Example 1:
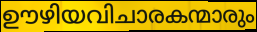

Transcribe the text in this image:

ഊഴിയവിചാരകന്മാരും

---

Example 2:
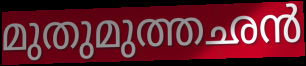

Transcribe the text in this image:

മുതുമുത്തഛൻ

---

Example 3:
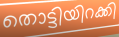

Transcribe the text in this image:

തൊട്ടിയിറക്കി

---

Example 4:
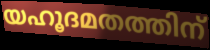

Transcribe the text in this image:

യഹൂദമതത്തിന്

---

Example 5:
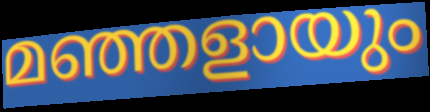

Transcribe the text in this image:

മഞ്ഞളായും